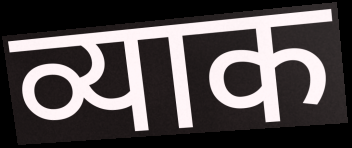
व्याक